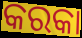
କରକା